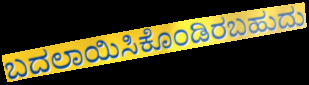
ಬದಲಾಯಿಸಿಕೊಂಡಿರಬಹುದು